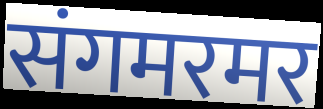
संगमरमर